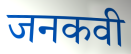
जनकवी